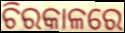
ଚିରକାଳରେ